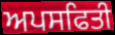
ਅਪਸਫਿਤੀ